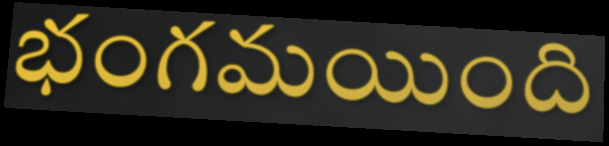
భంగమయింది